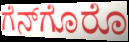
ಗೆನ್‌ಗೊರೊ